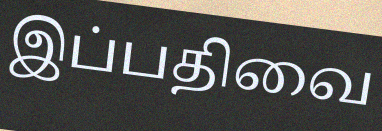
இப்பதிவை